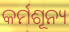
କର୍ମଶୂନ୍ୟ